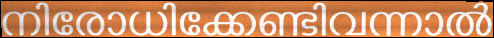
നിരോധിക്കേണ്ടിവന്നാൽ